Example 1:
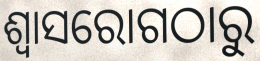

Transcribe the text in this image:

ଶ୍ୱାସରୋଗଠାରୁ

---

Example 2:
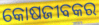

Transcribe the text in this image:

କୋଷଜୀବକର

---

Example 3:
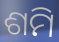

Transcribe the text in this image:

ଶମି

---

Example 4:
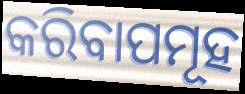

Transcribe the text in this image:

କରିବାପମୂହ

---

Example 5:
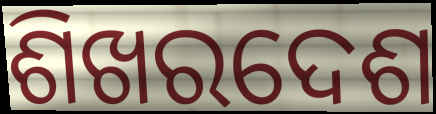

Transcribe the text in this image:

ଶିଖରଦେଶ